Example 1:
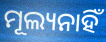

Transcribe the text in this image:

ମୂଲ୍ୟନାହିଁ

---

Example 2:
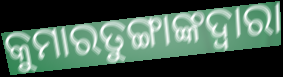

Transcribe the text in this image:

କୁମାରତୁଙ୍ଗାଙ୍କଦ୍ୱାରା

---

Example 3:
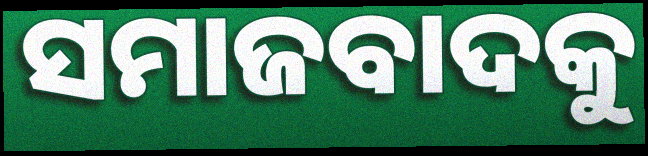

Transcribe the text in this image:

ସମାଜବାଦକୁ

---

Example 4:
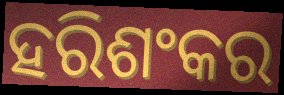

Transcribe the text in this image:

ହରିଶଂକର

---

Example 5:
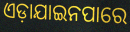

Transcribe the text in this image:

ଏଡ଼ାଯାଇନପାରେ